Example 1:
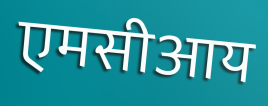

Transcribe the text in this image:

एमसीआय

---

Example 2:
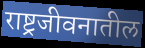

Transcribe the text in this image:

राष्ट्रजीवनातील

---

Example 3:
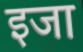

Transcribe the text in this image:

इजा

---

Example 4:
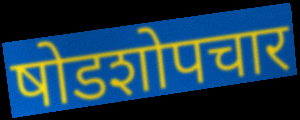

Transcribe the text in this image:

षोडशोपचार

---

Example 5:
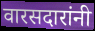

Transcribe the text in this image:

वारसदारांनी